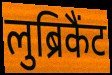
लुब्रिकैंट